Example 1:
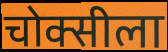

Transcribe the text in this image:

चोक्सीला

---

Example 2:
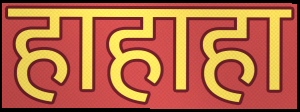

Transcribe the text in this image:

हाहाहा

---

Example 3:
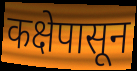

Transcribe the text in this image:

कक्षेपासून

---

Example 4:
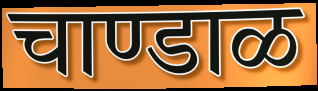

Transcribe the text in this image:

चाण्डाळ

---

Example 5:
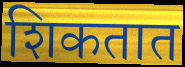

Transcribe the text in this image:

शिकतात